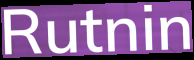
Rutnin